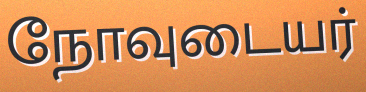
நோவுடையர்